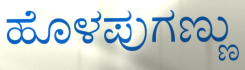
ಹೊಳಪುಗಣ್ಣು